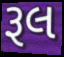
રૂલ